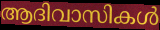
ആദിവാസികൾ